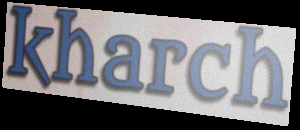
kharch